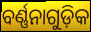
ବର୍ଣ୍ଣନାଗୁଡ଼ିକ